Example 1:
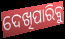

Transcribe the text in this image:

ଦେଖିପାରିବୁ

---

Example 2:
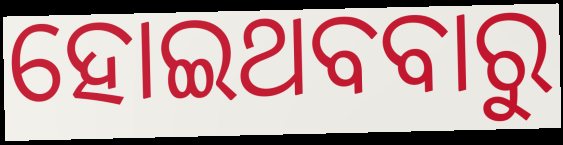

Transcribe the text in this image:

ହୋଇଥବବାରୁ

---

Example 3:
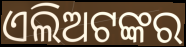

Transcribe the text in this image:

ଏଲିଅଟଙ୍କର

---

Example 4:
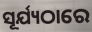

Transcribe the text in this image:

ସୂର୍ଯ୍ୟଠାରେ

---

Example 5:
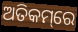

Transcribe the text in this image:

ଅତିକମ୍‌ରେ